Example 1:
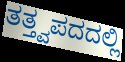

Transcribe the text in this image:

ತತ್ತ್ವಪದದಲ್ಲಿ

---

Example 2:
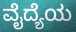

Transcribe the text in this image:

ವೈದ್ಯೆಯ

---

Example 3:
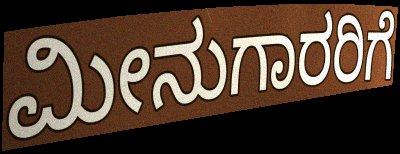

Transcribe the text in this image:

ಮೀನುಗಾರರಿಗೆ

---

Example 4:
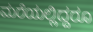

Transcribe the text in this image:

ಮರೆಯಲ್ಲಿದ್ದರೂ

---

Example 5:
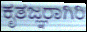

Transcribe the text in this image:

ಕೃತಜ್ಞರಾಗಿರಿ